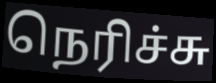
நெரிச்சு